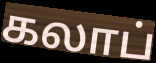
கலாப்